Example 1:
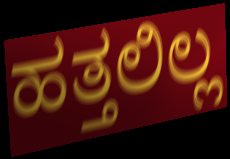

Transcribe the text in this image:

ಹತ್ತಲಿಲ್ಲ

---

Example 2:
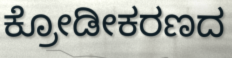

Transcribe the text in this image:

ಕ್ರೋಡೀಕರಣದ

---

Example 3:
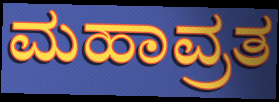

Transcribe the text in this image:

ಮಹಾವ್ರತ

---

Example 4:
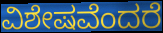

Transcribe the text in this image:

ವಿಶೇಷವೆಂದರೆ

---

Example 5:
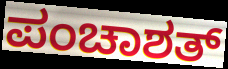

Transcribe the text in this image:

ಪಂಚಾಶತ್